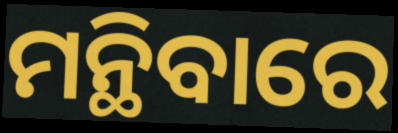
ମନ୍ଥିବାରେ